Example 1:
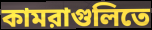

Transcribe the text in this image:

কামরাগুলিতে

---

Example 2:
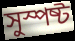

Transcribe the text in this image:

সুস্পষ্ট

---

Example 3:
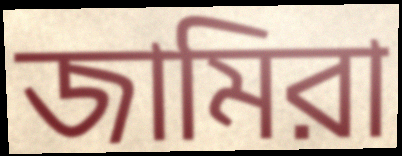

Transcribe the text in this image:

জামিরা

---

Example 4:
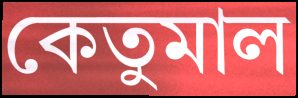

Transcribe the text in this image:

কেতুমাল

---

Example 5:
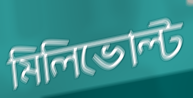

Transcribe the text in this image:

মিলিভোল্ট